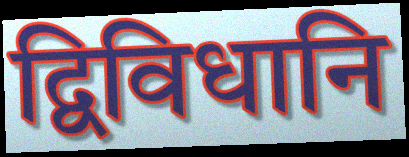
द्विविधानि